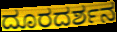
ದೂರದರ್ಶನ